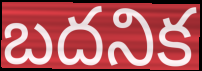
బదనిక